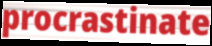
procrastinate